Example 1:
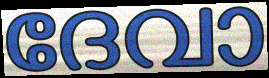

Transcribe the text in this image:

ദേവാ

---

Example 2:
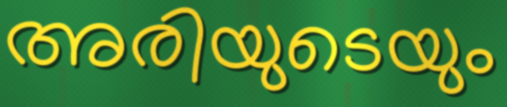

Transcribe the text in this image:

അരിയുടെയും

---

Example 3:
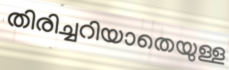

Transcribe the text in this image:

തിരിച്ചറിയാതെയുള്ള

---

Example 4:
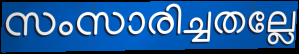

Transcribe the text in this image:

സംസാരിച്ചതല്ലേ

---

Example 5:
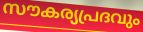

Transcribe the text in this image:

സൗകര്യപ്രദവും